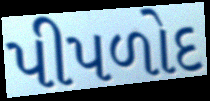
પીપળોદ